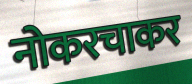
नोकरचाकर